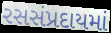
રસસંપ્રદાયમાં